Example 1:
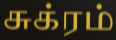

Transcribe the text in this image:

சுக்ரம்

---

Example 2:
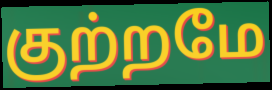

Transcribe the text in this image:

குற்றமே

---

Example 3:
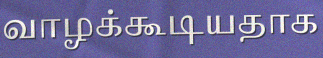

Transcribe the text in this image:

வாழக்கூடியதாக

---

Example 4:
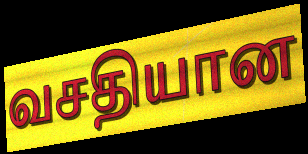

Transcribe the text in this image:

வசதியான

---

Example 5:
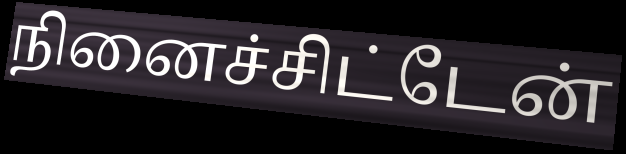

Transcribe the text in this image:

நினைச்சிட்டேன்